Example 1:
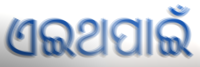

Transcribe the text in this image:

ଏଇଥପାଇଁ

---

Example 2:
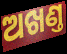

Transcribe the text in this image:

ଅଖଣ୍ତ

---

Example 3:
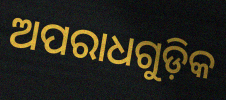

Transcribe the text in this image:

ଅପରାଧଗୁଡ଼ିକ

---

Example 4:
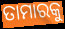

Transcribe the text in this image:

ତାମାରକୁ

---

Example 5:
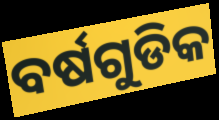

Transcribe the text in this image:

ବର୍ଷଗୁଡିକ